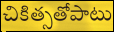
చికిత్సతోపాటు